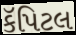
કૅપિટલ